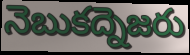
నెబుకద్నెజరు